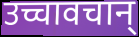
उच्चावचान्